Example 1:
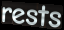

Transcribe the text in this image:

rests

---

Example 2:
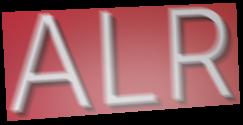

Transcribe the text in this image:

ALR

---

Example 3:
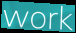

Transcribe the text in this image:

work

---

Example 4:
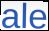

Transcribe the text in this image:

ale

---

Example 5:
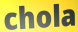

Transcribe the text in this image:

chola